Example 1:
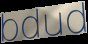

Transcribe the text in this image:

bdud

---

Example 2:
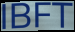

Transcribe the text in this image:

IBFT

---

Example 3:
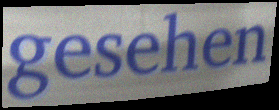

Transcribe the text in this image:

gesehen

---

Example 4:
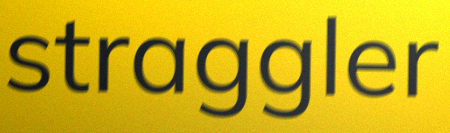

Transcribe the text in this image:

straggler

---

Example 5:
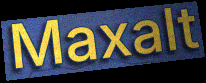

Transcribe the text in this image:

Maxalt